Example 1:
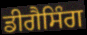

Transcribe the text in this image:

ਡੀਗੈਸਿੰਗ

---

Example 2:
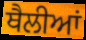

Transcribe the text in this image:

ਥੈਲੀਆਂ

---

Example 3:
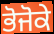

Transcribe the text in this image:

ਭੋਜੋਕੇ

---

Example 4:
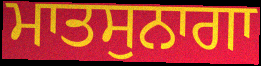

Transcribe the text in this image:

ਮਾਤਸੁਨਾਗਾ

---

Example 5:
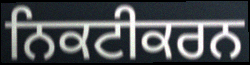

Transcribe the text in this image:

ਨਿਕਟੀਕਰਨ